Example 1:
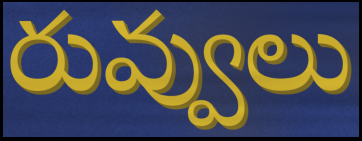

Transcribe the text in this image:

రువ్వులు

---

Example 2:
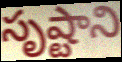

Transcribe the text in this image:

సృష్టాని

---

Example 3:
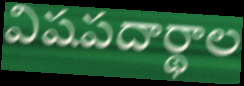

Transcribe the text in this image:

విషపదార్థాల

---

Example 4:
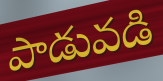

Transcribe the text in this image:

పాడువడి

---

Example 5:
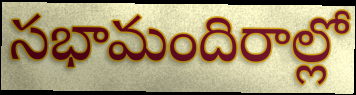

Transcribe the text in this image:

సభామందిరాల్లో